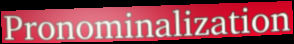
Pronominalization